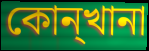
কোন্খানা